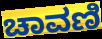
ಚಾವಣಿ